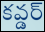
కవ్డర్